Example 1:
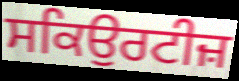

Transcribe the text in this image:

ਸਕਿਉਰਟੀਜ਼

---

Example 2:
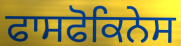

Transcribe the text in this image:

ਫਾਸਫੋਕਿਨੇਸ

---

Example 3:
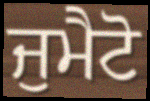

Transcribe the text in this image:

ਜੁਮੈਟੋ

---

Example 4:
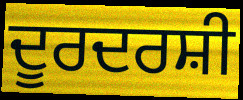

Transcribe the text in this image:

ਦੂਰਦਰਸ਼ੀ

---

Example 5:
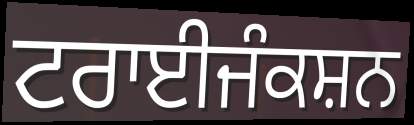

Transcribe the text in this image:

ਟਰਾਈਜੰਕਸ਼ਨ